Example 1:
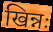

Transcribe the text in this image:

खिन्नः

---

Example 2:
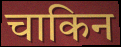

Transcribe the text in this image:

चाकिन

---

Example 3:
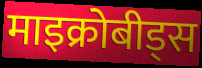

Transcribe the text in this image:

माइक्रोबीड्स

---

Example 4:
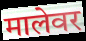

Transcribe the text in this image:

मालेवर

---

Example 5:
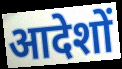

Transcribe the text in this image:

आदेशों